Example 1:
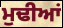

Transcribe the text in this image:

ਮੁਢੀਆਂ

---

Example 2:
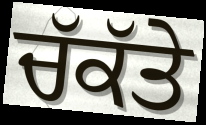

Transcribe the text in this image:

ਚੱਕੱਤੇ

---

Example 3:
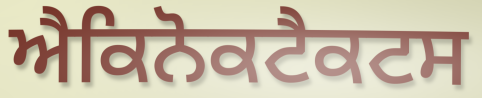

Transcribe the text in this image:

ਐਕਿਨੋਕਟੈਕਟਸ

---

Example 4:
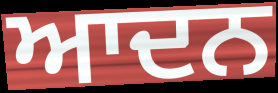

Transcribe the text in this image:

ਆਦਨ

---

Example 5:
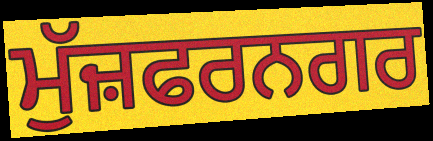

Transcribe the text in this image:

ਮੁੱਜ਼ਫਰਨਗਰ